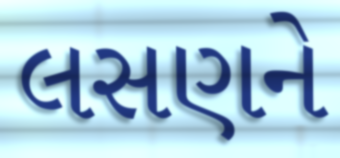
લસણને